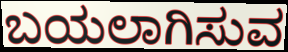
ಬಯಲಾಗಿಸುವ